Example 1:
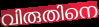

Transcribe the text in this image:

വിരുതിനെ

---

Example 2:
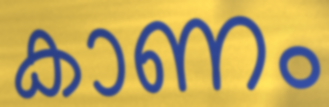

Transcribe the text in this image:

കാണം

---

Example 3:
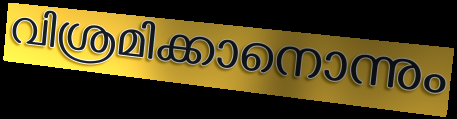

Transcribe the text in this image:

വിശ്രമിക്കാനൊന്നും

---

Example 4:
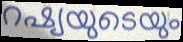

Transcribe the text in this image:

റഷ്യയുടെയും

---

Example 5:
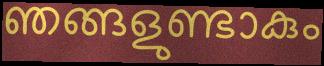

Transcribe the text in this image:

ഞങ്ങളുണ്ടാകും